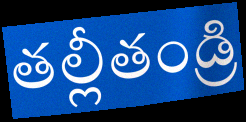
తల్లీతండ్రి